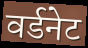
वर्डनेट